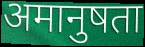
अमानुषता